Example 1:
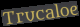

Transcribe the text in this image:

Trucaloe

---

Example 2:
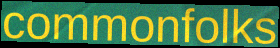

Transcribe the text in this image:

commonfolks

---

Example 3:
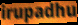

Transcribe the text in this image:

irupadhu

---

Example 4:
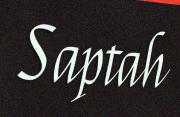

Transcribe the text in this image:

Saptah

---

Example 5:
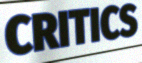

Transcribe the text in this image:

CRITICS